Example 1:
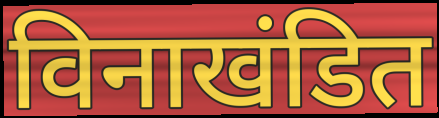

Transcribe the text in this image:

विनाखंडित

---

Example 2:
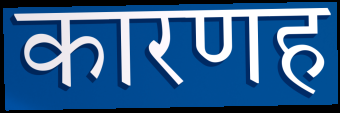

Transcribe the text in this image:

कारणह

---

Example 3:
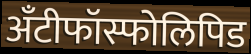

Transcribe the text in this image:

अँटीफॉस्फोलिपिड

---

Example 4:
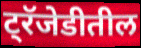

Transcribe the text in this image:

ट्रॅजेडीतील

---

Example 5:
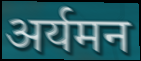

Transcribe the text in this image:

अर्यमन